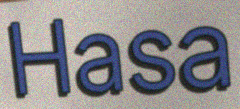
Hasa